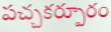
పచ్చకర్పూరం